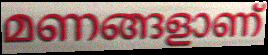
മണങ്ങളാണ്